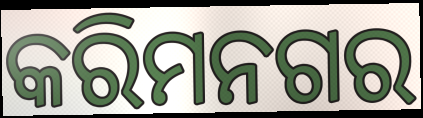
କରିମନଗର